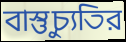
বাস্তুচ্যুতির